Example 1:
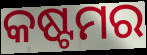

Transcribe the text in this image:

କଷ୍ଟମର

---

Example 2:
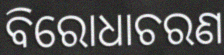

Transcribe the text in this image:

ବିରୋଧାଚରଣ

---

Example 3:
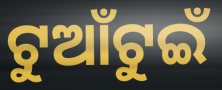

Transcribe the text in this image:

ଟୁଆଁଟୁଇଁ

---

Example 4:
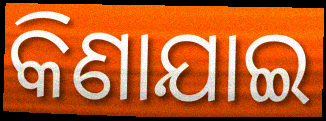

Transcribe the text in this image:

କିଣାଯାଇ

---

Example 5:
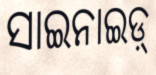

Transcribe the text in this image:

ସାଇନାଇଡ଼୍